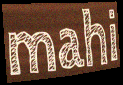
mahi